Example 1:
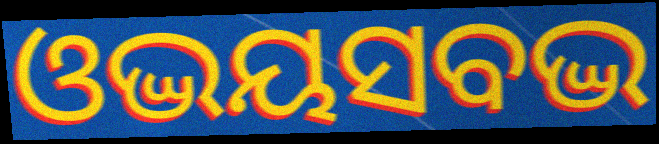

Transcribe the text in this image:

ଓଦ୍ଭୟସବଦ୍ଭ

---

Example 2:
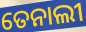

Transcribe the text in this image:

ତେନାଲୀ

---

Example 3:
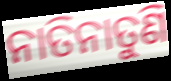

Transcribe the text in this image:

ନାତିନାତୁଣି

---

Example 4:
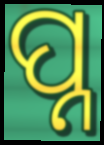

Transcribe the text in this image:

ପ୍ନ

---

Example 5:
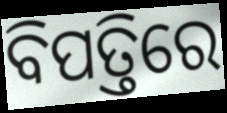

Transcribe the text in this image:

ବିପତ୍ତିରେ